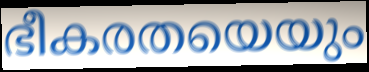
ഭീകരതയെയും